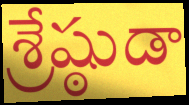
శ్రేష్ఠుడా